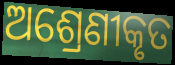
ଅଶ୍ରେଣୀକୃତ